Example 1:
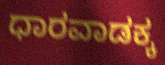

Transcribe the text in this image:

ಧಾರವಾಡಕ್ಕ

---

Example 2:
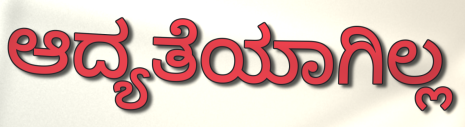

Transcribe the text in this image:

ಆದ್ಯತೆಯಾಗಿಲ್ಲ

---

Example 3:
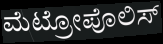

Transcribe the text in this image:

ಮೆಟ್ರೋಪೊಲಿಸ್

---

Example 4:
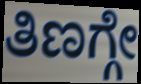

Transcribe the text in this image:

ತಿಣಗ್ಗೇ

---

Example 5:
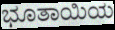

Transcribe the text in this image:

ಭೂತಾಯಿಯ